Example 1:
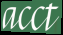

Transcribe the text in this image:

acct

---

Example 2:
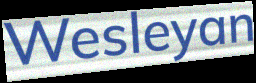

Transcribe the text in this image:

Wesleyan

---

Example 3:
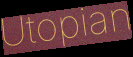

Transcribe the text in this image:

Utopian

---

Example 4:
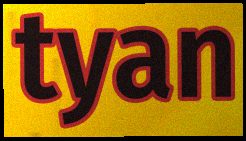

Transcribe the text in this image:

tyan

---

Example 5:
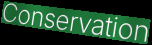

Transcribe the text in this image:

Conservation